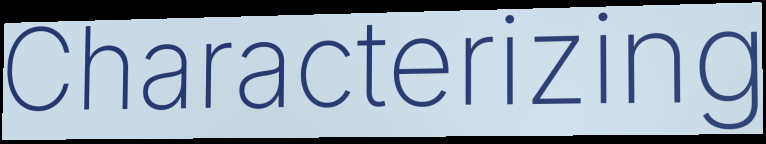
Characterizing